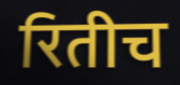
रितीच